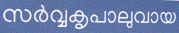
സർവ്വകൃപാലുവായ